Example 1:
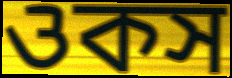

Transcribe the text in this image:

ওকস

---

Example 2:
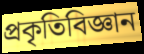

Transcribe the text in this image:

প্রকৃতিবিজ্ঞান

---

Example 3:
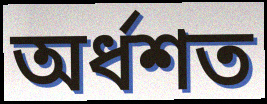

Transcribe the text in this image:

অর্ধশত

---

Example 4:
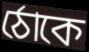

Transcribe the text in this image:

ঠোকে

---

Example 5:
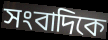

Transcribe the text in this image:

সংবাদিকে